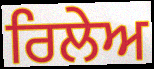
ਰਿਲੇਅ